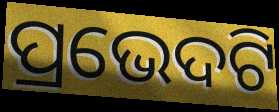
ପ୍ରଭେଦଟି